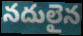
నదులైన